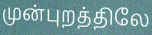
முன்புறத்திலே